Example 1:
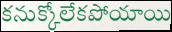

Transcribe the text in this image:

కనుక్కోలేకపోయాయి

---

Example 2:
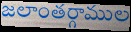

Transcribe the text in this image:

జలాంతర్గాముల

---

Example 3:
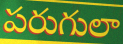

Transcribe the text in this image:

పరుగులా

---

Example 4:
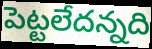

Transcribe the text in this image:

పెట్టలేదన్నది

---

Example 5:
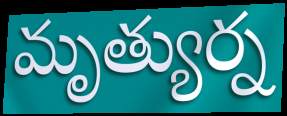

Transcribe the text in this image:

మృత్యుర్న